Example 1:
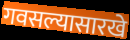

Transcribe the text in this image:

गवसल्यासारखे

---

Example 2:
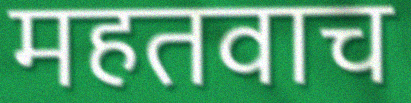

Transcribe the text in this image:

महतवाच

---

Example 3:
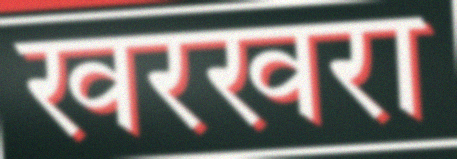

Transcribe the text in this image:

खरखरा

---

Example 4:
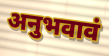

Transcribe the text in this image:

अनुभवावं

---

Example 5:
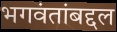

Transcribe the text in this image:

भगवंतांबद्दल